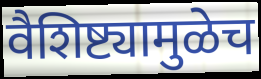
वैशिष्ट्यामुळेच